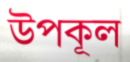
উপকূল